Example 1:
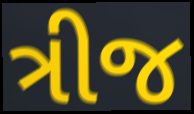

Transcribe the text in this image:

ત્રીજ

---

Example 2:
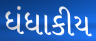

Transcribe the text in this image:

ધંધાકીય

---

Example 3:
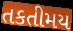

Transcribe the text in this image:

તકતીમય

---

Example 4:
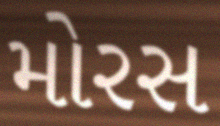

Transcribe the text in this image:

મોરસ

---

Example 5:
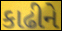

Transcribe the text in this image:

કાઢીને